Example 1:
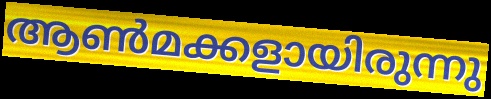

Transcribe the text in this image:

ആൺമക്കളായിരുന്നു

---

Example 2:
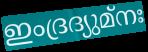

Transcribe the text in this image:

ഇംദ്രദ്യുമ്നഃ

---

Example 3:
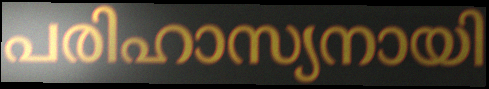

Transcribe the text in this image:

പരിഹാസ്യനായി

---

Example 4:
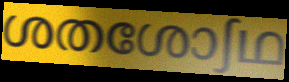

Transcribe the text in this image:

ശതശോഽഥ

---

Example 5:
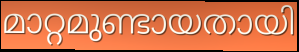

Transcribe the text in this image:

മാറ്റമുണ്ടായതായി